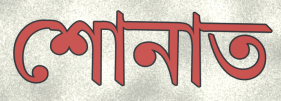
শোনাত